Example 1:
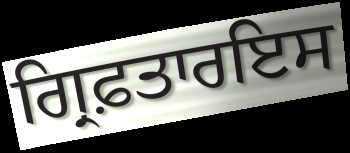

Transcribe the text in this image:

ਗ੍ਰਿਫ਼ਤਾਰਇਸ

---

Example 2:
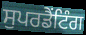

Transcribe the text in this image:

ਸੁਪਰਡੈਂਟਿੰਗ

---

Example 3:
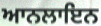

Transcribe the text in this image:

ਆਨਲਾਇਨ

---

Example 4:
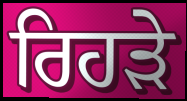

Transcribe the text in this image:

ਰਿਹੜੇ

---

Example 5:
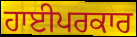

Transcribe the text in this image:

ਹਾਈਪਰਕਾਰ